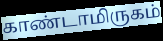
காண்டாமிருகம்